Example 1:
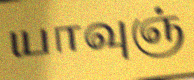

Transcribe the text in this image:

யாவுஞ்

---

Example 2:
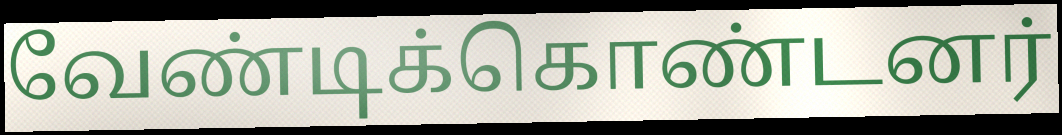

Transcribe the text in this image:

வேண்டிக்கொண்டனர்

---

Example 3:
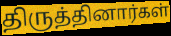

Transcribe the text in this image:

திருத்தினார்கள்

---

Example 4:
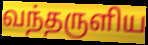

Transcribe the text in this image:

வந்தருளிய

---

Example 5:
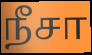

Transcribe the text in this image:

நீசா